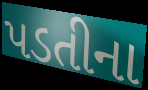
પડતીના